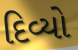
દિવ્યો